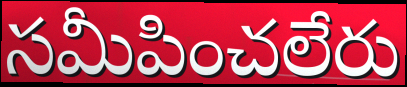
సమీపించలేరు